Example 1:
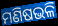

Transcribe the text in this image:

ମଣିଷଭଳି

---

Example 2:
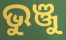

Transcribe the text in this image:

ଭୁଞ୍ଜୁ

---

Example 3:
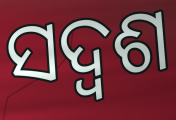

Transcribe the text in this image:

ସଦ୍ଵଶ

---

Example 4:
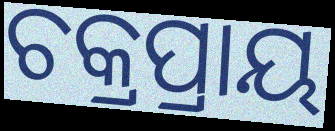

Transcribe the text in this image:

ଚକ୍ରପ୍ରାୟ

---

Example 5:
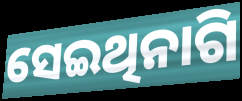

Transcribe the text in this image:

ସେଇଥିନାଗି